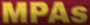
MPAs